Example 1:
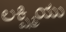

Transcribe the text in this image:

ಲಕ್ಷ್ಮಿಯು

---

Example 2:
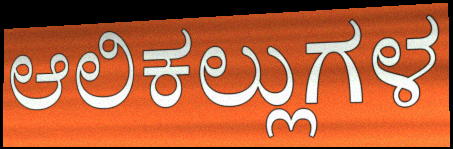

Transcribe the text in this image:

ಆಲಿಕಲ್ಲುಗಳ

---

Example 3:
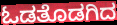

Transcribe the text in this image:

ಓಡತೊಡಗಿದ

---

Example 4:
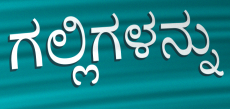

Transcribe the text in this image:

ಗಲ್ಲಿಗಳನ್ನು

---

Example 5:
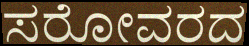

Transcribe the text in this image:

ಸರೋವರದ